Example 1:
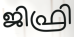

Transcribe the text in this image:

ജിഫ്രി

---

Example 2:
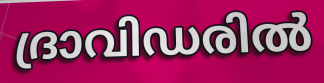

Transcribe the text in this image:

ദ്രാവിഡരിൽ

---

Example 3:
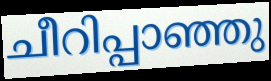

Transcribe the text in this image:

ചീറിപ്പാഞ്ഞു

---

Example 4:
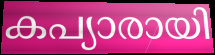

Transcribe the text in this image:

കപ്യാരായി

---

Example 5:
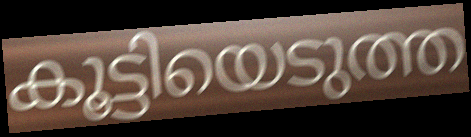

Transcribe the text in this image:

കൂട്ടിയെടുത്ത